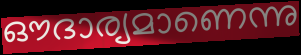
ഔദാര്യമാണെന്നു